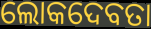
ଲୋକଦେବତା